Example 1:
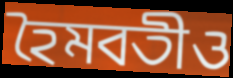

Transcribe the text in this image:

হৈমবতীও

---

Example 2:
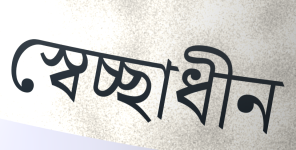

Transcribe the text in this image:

স্বেচ্ছাধীন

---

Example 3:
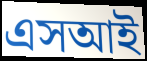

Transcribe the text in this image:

এসআই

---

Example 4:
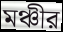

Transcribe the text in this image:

মঞ্চীর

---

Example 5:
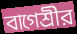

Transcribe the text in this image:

বাগেশ্রীর